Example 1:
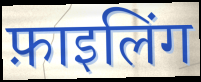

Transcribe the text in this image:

फ़ाइलिंग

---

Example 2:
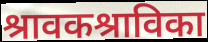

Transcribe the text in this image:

श्रावकश्राविका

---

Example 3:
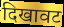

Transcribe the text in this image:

दिखावट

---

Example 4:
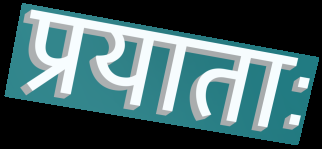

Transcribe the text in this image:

प्रयाताः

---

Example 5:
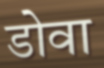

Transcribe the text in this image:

डोवा